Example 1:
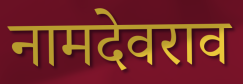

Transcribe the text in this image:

नामदेवराव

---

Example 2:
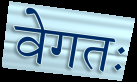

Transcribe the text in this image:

वेगतः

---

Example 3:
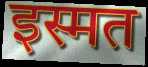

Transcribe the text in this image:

इस्मत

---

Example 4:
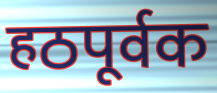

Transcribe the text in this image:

हठपूर्वक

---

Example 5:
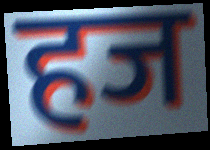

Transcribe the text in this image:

हज